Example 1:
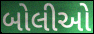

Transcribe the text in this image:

બોલીઓ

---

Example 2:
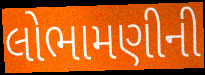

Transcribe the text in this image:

લોભામણીની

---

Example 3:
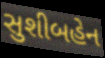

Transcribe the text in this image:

સુશીબહેન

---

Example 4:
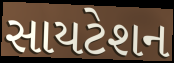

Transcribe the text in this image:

સાયટેશન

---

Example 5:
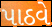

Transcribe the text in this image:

પાઠવે